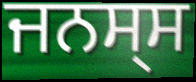
ਜਨਸ੍ਸ